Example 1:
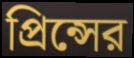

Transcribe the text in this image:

প্রিন্সের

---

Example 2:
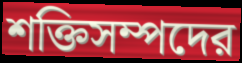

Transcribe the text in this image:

শক্তিসম্পদের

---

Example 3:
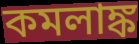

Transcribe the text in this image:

কমলাঙ্ক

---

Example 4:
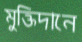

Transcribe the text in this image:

মুক্তিদানে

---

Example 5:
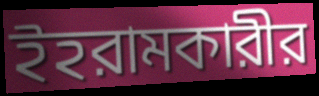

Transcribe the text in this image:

ইহরামকারীর